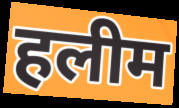
हलीम